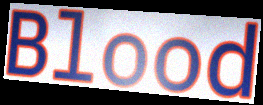
Blood